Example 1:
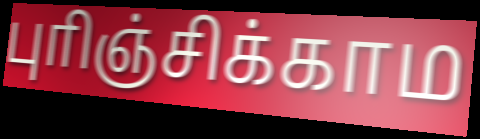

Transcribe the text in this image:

புரிஞ்சிக்காம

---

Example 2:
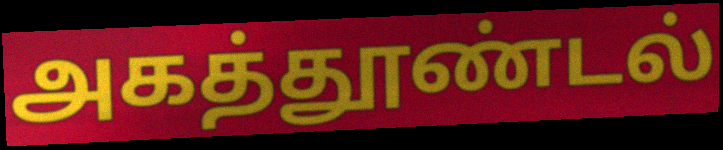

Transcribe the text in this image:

அகத்தூண்டல்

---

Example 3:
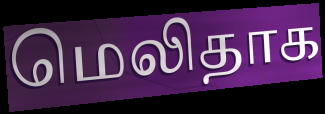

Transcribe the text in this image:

மெலிதாக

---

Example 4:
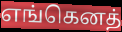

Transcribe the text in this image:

எங்கெனத்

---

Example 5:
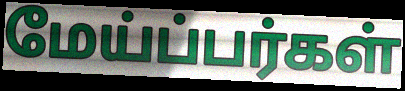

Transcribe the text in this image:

மேய்ப்பர்கள்